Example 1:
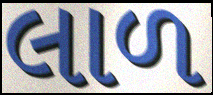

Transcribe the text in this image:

લાળ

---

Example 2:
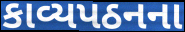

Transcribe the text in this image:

કાવ્યપઠનના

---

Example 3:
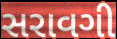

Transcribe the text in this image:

સરાવગી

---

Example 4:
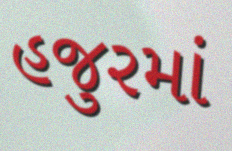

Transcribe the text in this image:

હજુરમાં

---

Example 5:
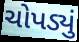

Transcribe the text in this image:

ચોપડ્યું